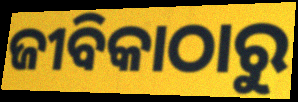
ଜୀବିକାଠାରୁ